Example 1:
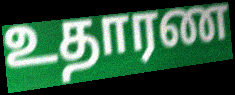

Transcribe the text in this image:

உதாரண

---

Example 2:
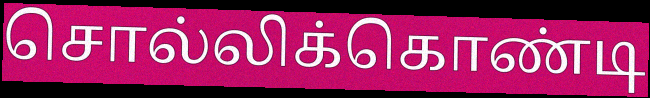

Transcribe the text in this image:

சொல்லிக்கொண்டி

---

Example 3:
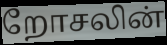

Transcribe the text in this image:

றோசலின்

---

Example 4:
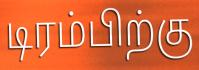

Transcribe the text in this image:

டிரம்பிற்கு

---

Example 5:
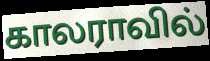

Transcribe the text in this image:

காலராவில்